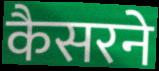
कैसरने